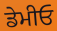
ਡੇਮੀਓ